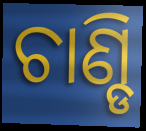
ଚାଣ୍ଡି